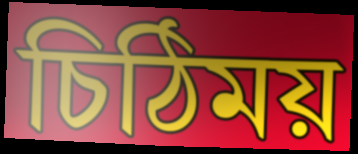
চিঠিময়